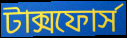
টাক্সফোর্স